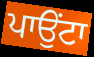
ਪਾਉਂਟਾ